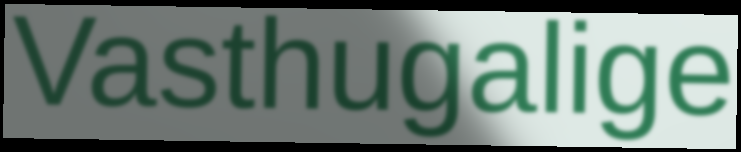
Vasthugalige